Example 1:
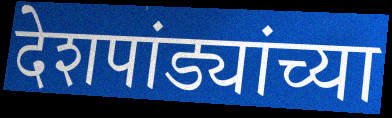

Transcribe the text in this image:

देशपांड्यांच्या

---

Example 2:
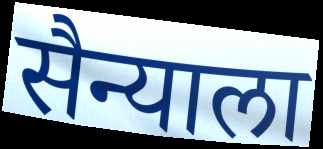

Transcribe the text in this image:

सैन्याला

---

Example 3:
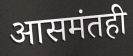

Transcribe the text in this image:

आसमंतही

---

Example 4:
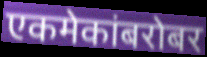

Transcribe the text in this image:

एकमेकांबरोबर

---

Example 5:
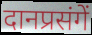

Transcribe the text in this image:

दानप्रसंगें